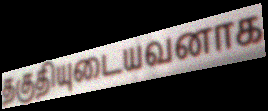
தகுதியுடையவனாக